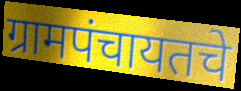
ग्रामपंचायतचे